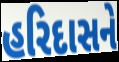
હરિદાસને